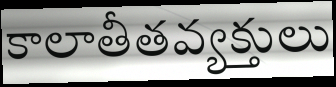
కాలాతీతవ్యక్తులు